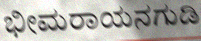
ಭೀಮರಾಯನಗುಡಿ